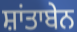
ਸ਼ਾਂਤਾਬੇਨ